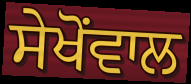
ਸੇਖੋਂਵਾਲ